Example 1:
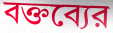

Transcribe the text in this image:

বক্তব্যের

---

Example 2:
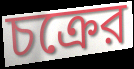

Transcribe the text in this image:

চক্রের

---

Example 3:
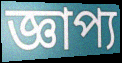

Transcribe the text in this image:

জ্ঞাপ্য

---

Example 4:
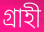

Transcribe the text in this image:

গ্রাহী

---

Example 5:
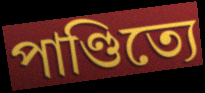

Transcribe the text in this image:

পাণ্ডিত্যে